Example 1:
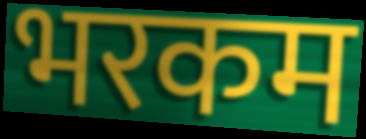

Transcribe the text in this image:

भरकम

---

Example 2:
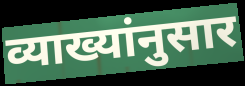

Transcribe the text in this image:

व्याख्यांनुसार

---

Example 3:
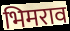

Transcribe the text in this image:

भिमराव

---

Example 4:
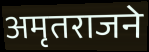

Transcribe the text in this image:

अमृतराजने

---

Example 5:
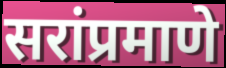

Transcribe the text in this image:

सरांप्रमाणे